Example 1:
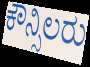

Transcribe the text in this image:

ಕೌನ್ಸಿಲರು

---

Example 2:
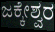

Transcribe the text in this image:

ಜಕ್ಕೇಶ್ವರ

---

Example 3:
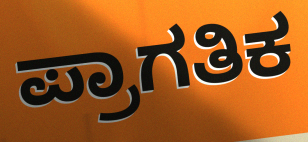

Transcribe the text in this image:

ಪ್ರಾಗತಿಕ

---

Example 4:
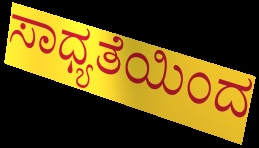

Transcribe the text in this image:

ಸಾಧ್ಯತೆಯಿಂದ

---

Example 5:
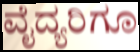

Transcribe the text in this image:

ವೈದ್ಯರಿಗೂ